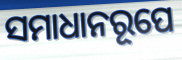
ସମାଧାନରୂପେ